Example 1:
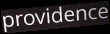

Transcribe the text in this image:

providence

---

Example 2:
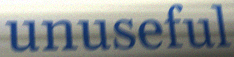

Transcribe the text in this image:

unuseful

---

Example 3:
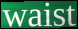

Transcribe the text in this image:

waist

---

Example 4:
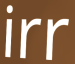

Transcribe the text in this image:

irr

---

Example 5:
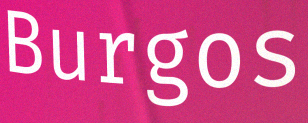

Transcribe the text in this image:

Burgos